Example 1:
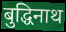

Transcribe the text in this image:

बुद्धिनाथ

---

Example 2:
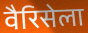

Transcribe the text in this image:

वैरिसेला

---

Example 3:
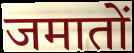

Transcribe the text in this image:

जमातों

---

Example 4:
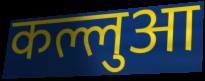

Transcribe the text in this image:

कल्लुआ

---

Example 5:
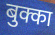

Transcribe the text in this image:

बुक्का